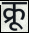
क्रू